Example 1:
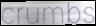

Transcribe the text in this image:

crumbs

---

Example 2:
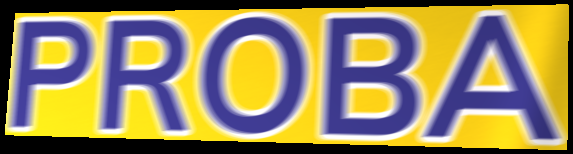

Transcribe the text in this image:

PROBA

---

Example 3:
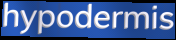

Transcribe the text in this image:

hypodermis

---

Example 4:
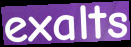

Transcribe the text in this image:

exalts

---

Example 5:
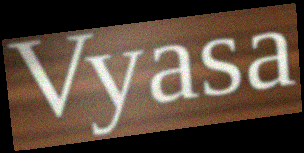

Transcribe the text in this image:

Vyasa